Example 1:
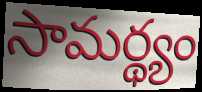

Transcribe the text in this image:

సామర్థ్యం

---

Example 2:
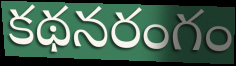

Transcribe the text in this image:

కథనరంగం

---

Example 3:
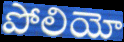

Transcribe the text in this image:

పోలియో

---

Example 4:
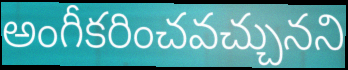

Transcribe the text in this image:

అంగీకరించవచ్చునని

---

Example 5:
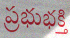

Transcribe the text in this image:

ప్రభుభక్తి